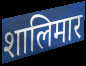
शालिमार